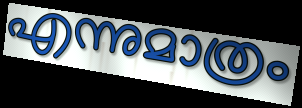
എന്നുമാത്രം